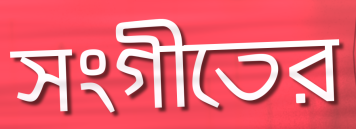
সংগীতের